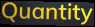
Quantity